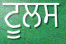
ਟੂਲਸ